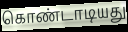
கொண்டாடியது